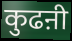
कुढऩी